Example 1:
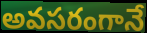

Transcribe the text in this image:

అవసరంగానే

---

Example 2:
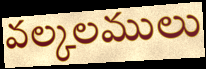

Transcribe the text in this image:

వల్కలములు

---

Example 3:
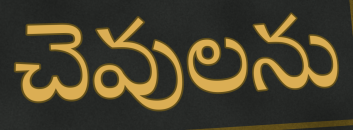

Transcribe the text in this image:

చెవులను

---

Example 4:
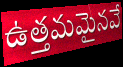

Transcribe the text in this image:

ఉత్తమమైనవే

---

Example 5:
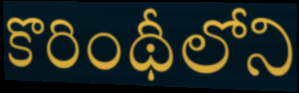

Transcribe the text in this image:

కొరింథీలోని